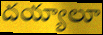
దయ్యాలూ